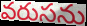
వరుసను